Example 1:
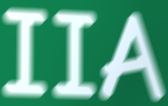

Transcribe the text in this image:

IIA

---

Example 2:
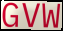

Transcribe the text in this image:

GVW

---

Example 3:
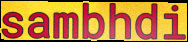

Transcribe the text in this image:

sambhdi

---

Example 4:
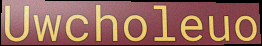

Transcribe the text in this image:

Uwcholeuo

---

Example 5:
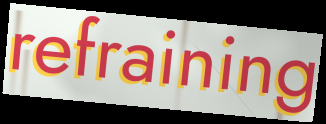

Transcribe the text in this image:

refraining